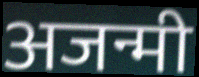
अजन्मी